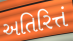
અતિરિત્તં